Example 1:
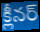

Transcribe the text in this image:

క్లీనర్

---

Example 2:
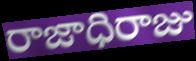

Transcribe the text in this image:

రాజాధిరాజు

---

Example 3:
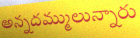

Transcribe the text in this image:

అన్నదమ్ములున్నారు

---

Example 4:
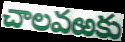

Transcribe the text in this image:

చాలవఱకు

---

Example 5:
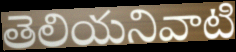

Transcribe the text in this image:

తెలియనివాటి